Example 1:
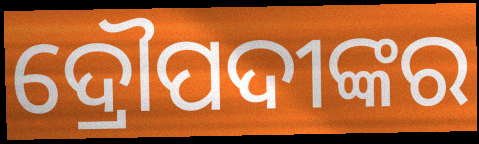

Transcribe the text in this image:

ଦ୍ରୌପଦୀଙ୍କର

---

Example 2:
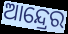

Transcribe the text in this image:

ଆନ୍ଦ୍ରେର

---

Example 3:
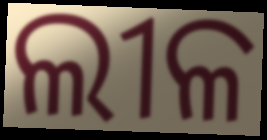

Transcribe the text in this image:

ଲୀଳ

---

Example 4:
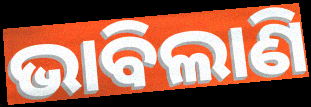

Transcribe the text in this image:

ଭାବିଲାଣି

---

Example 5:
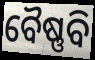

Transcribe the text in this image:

ବୈଷ୍ଣବି